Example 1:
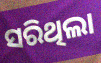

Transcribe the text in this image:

ସରିଥିଲା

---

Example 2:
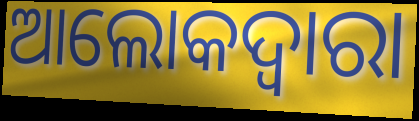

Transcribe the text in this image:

ଆଲୋକଦ୍ୱାରା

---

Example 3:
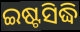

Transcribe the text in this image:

ଇଷ୍ଟସିଦ୍ଧି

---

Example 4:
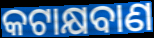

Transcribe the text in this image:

କଟାକ୍ଷବାଣ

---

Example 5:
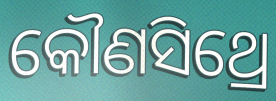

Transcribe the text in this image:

କୌଣସିଥ୍ରେ